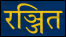
रञ्जित